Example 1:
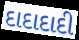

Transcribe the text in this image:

દાદાદાદી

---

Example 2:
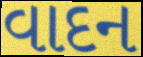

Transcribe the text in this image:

વાદન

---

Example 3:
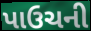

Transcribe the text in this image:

પાઉચની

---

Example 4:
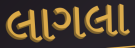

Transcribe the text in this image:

લાગલા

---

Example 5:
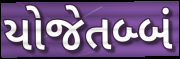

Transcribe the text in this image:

યોજેતબ્બં